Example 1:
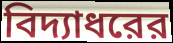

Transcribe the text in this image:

বিদ্যাধরের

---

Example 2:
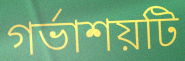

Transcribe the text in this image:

গর্ভাশয়টি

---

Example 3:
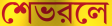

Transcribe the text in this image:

শেভরলে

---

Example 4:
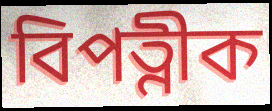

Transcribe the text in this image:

বিপত্নীক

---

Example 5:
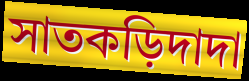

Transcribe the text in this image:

সাতকড়িদাদা